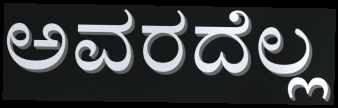
ಅವರದೆಲ್ಲ